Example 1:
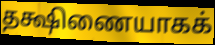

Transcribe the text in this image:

தக்ஷிணையாகக்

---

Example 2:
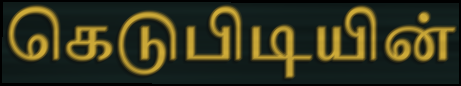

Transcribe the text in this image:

கெடுபிடியின்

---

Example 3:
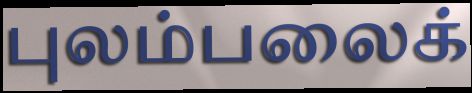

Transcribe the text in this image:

புலம்பலைக்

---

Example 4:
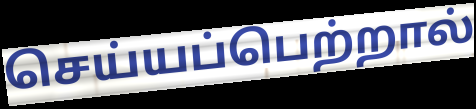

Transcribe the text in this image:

செய்யப்பெற்றால்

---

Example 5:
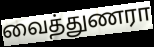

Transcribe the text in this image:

வைத்துணரா